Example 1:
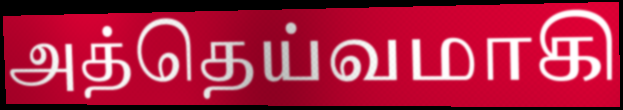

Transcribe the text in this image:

அத்தெய்வமாகி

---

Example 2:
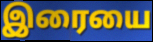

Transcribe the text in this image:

இரையை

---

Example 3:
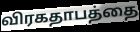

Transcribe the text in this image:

விரகதாபத்தை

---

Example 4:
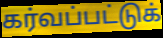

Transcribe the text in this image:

கர்வப்பட்டுக்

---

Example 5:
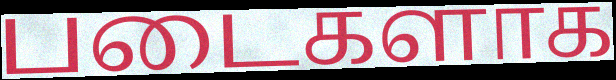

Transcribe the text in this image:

படைகளாக